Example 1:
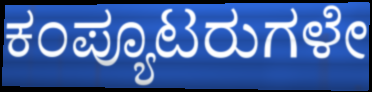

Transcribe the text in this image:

ಕಂಪ್ಯೂಟರುಗಳೇ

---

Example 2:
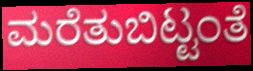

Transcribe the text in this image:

ಮರೆತುಬಿಟ್ಟಂತೆ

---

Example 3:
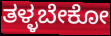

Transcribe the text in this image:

ತಳ್ಳಬೇಕೋ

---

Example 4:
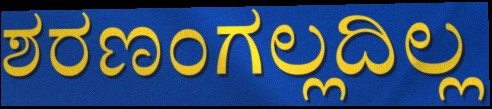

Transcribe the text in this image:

ಶರಣಂಗಲ್ಲದಿಲ್ಲ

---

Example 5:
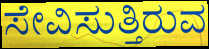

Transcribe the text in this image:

ಸೇವಿಸುತ್ತಿರುವ